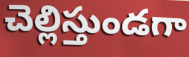
చెల్లిస్తుండగా